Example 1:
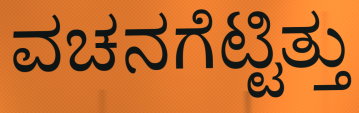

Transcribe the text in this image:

ವಚನಗೆಟ್ಟಿತ್ತು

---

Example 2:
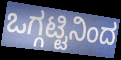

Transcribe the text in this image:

ಒಗ್ಗಟ್ಟಿನಿಂದ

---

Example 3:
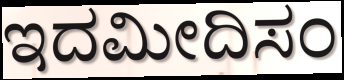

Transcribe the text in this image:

ಇದಮೀದಿಸಂ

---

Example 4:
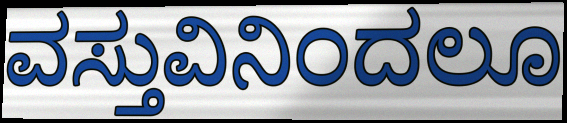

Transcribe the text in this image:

ವಸ್ತುವಿನಿಂದಲೂ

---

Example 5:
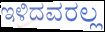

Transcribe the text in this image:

ಇಳಿದವರಲ್ಲ